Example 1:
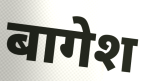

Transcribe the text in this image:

बागेश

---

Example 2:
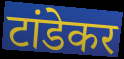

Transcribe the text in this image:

टांडेकर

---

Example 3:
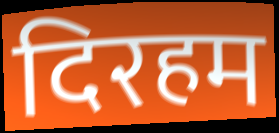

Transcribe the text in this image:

दिरहम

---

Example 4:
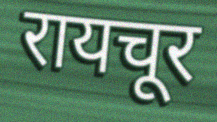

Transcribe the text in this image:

रायचूर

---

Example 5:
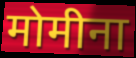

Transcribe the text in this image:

मोमीना